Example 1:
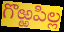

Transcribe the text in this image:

గొఱ్ఱపిల్ల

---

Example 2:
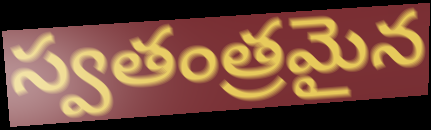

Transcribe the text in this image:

స్వతంత్రమైన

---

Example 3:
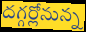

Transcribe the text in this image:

దగ్గర్లోనున్న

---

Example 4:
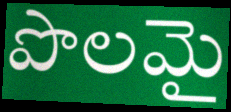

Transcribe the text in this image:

పొలమై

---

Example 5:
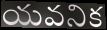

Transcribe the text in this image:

యవనిక